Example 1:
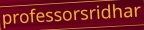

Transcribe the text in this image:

professorsridhar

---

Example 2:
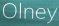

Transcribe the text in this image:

Olney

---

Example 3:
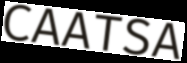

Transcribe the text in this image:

CAATSA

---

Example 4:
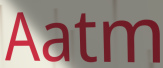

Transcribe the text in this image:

Aatm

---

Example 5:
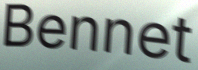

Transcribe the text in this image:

Bennet